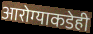
आरोग्याकडेही